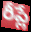
రీప్లే